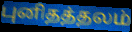
புனிதத்தலம்